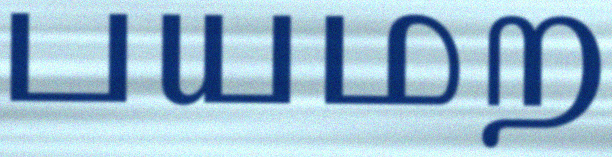
பயமற